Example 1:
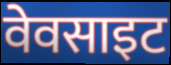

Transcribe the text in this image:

वेवसाइट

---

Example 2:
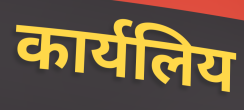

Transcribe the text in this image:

कार्यलिय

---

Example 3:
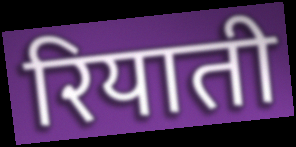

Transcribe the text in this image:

रियाती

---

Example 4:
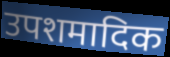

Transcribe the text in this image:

उपशमादिक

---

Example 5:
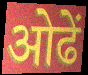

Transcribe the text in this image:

ओढें